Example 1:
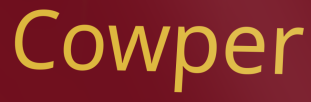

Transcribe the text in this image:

Cowper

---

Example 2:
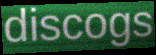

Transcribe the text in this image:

discogs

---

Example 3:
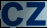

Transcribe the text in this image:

cz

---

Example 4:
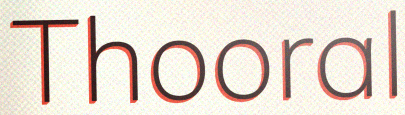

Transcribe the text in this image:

Thooral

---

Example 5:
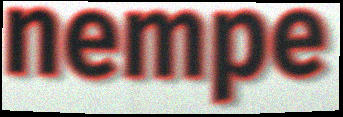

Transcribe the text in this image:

nempe